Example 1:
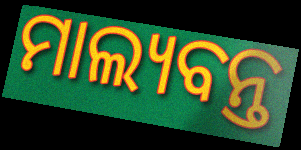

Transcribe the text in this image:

ମାଲ୍ୟବନ୍ତ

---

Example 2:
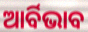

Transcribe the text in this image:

ଆର୍ବିଭାବ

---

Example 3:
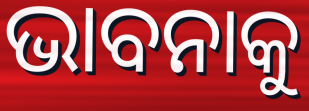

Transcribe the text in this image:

ଭାବନାକୁ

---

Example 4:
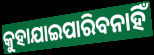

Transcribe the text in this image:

କୁହାଯାଇପାରିବନାହିଁ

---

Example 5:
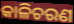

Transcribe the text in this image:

କାଳିଚରଣ